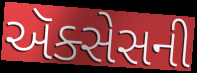
ઍક્સેસની